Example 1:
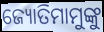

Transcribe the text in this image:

ଜ୍ୟୋତିମାମୁଙ୍କୁ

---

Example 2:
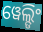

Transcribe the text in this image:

ୱେଲ୍ଡିଂ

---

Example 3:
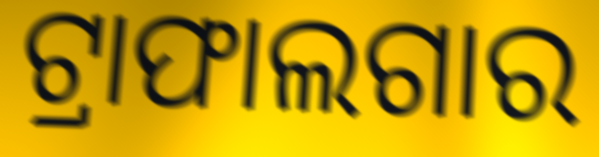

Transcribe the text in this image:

ଟ୍ରାଫାଲଗାର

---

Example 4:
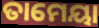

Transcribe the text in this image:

ତାମେୟା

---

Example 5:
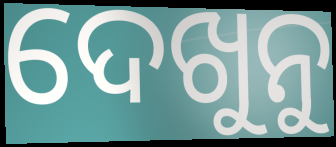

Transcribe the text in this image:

ଦେଖୁନୁ